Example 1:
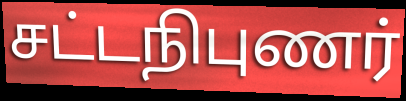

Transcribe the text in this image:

சட்டநிபுணர்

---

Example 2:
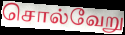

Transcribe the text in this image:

சொல்வேறு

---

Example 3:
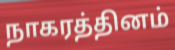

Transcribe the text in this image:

நாகரத்தினம்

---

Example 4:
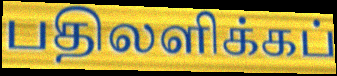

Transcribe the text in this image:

பதிலளிக்கப்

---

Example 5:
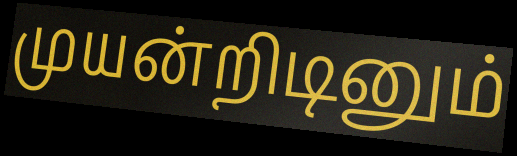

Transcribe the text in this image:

முயன்றிடினும்